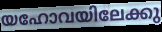
യഹോവയിലേക്കു